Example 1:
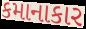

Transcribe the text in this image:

કમાનાકાર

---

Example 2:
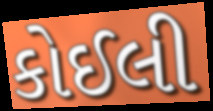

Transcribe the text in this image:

કોઈલી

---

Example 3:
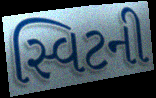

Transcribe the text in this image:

સ્વિટની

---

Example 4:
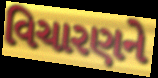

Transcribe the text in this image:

વિચારણને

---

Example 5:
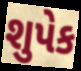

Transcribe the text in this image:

શુપેક